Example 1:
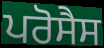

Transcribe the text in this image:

ਪਰੋਸੈਸ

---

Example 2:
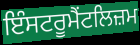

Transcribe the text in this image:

ਇੰਸਟਰੂਮੈਂਟਲਿਜ਼ਮ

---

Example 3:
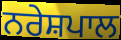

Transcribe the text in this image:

ਨਰੇਸ਼ਪਾਲ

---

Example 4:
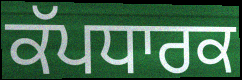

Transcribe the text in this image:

ਕੱਪਧਾਰਕ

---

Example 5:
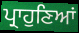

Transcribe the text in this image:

ਪ੍ਰਾਹੁਣਿਆਂ